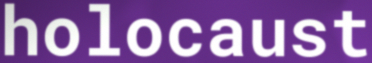
holocaust